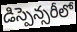
డిస్పెన్సరీలో